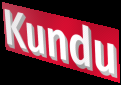
Kundu